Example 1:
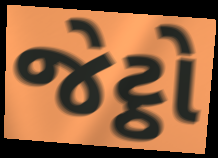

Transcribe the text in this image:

જેટ્ઠો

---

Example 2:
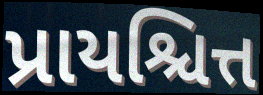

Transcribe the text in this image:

પ્રાયશ્ચિત્ત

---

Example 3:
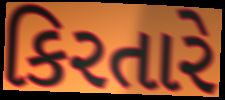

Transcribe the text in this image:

કિરતારે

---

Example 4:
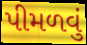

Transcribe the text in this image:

પીમળવું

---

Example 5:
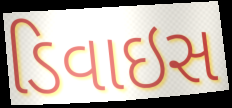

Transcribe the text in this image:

ડિવાઇસ